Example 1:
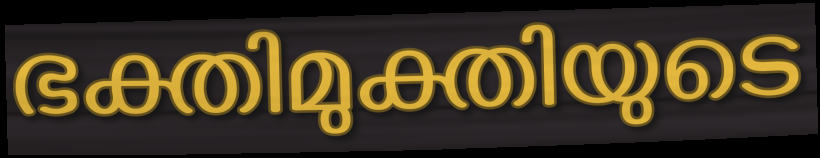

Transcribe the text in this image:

ഭക്തിമുക്തിയുടെ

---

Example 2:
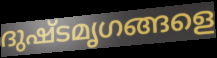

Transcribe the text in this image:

ദുഷ്ടമൃഗങ്ങളെ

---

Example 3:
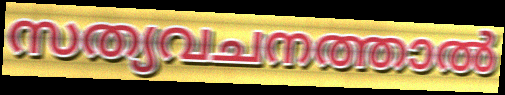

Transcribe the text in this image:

സത്യവചനത്താൽ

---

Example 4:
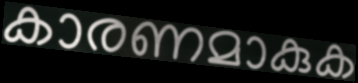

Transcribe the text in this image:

കാരണമാകുക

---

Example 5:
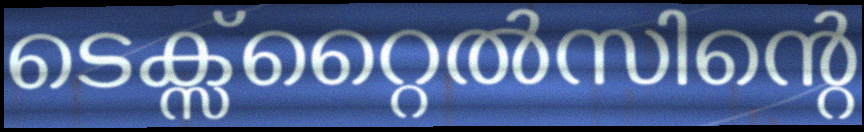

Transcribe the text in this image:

ടെക്സ്റ്റൈൽസിന്റെ